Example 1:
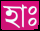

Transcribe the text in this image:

হাঃ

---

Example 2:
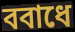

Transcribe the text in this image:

ববাধে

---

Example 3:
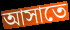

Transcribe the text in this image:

আসাতে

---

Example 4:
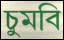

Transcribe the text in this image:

চুমবি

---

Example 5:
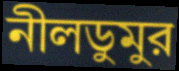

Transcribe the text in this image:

নীলডুমুর